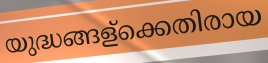
യുദ്ധങ്ങള്ക്കെതിരായ